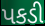
પકડી